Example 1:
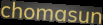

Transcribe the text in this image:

chomasun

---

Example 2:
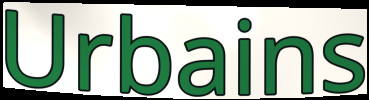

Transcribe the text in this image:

Urbains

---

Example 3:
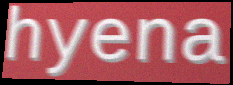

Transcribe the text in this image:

hyena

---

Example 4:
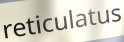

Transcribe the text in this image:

reticulatus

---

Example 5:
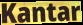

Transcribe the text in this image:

Kantar